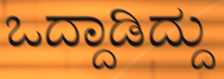
ಒದ್ದಾಡಿದ್ದು